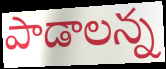
పాడాలన్న